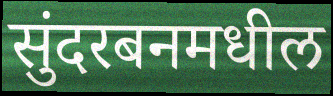
सुंदरबनमधील